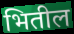
भितील